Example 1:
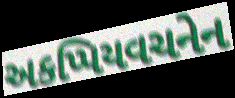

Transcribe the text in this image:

અકપ્પિયવચનેન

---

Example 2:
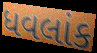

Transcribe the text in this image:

ધવલાંક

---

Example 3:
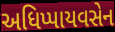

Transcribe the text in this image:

અધિપ્પાયવસેન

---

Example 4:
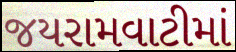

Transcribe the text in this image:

જયરામવાટીમાં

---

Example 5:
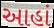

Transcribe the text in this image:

આહાં